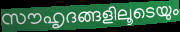
സൗഹൃദങ്ങളിലൂടെയും